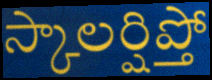
స్కాలర్షిప్తో